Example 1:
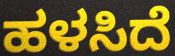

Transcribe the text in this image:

ಹಳಸಿದೆ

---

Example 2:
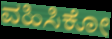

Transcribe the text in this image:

ವಹಿಸಿಕೋ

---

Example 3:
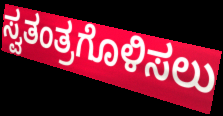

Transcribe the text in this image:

ಸ್ವತಂತ್ರಗೊಳಿಸಲು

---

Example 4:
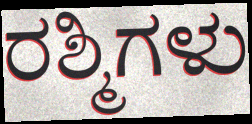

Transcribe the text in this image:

ರಶ್ಮಿಗಳು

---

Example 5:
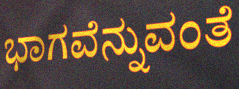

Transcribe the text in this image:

ಭಾಗವೆನ್ನುವಂತೆ